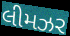
લીમઝર